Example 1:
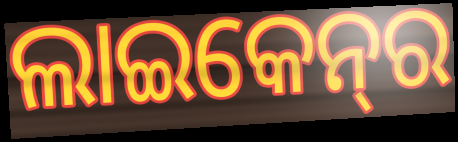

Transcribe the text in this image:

ଲାଇକେନ୍‌ର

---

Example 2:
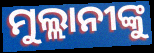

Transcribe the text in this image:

ମୁଲ୍ଲାନୀଙ୍କୁ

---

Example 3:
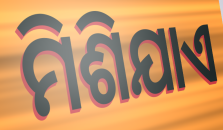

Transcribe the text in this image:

ମିଶିଯାଏ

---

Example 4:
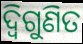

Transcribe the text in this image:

ଦ୍ୱିଗୁଣିତ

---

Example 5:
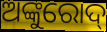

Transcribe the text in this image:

ଅଙ୍କୁରୋଦ୍